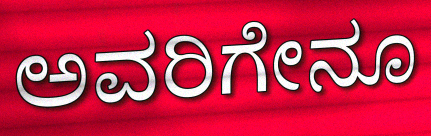
ಅವರಿಗೇನೂ